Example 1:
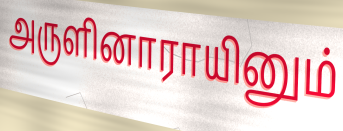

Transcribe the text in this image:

அருளினாராயினும்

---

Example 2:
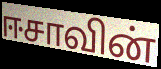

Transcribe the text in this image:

ஈசாவின்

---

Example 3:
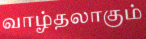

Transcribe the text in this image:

வாழ்தலாகும்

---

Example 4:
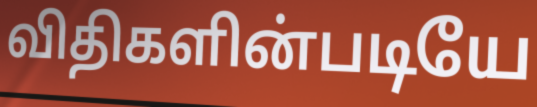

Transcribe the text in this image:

விதிகளின்படியே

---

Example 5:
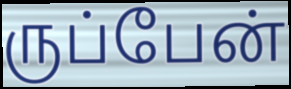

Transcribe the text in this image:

ருப்பேன்